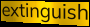
extinguish